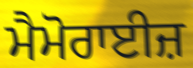
ਮੈਮੋਰਾਈਜ਼